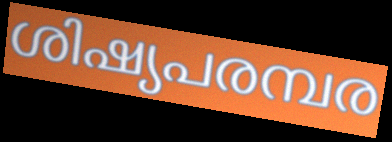
ശിഷ്യപരമ്പര